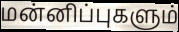
மன்னிப்புகளும்